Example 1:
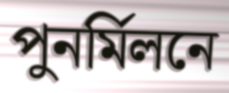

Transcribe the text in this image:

পুনর্মিলনে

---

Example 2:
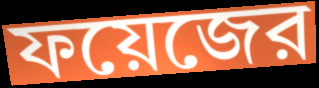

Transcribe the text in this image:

ফয়েজের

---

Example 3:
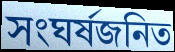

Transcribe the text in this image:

সংঘর্ষজনিত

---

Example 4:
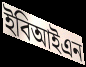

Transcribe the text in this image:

ইবিআইএন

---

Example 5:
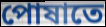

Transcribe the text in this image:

পোষাতে